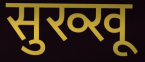
सुख्खू